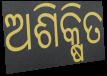
ଅଶିକ୍ଷିତ